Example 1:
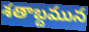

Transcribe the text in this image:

శతాబ్దమున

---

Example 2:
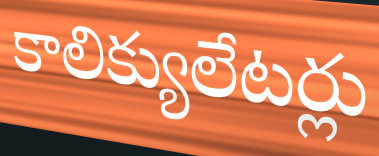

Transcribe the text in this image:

కాలిక్యులేటర్లు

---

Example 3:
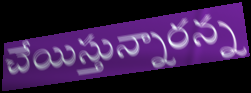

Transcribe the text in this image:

చేయిస్తున్నారన్న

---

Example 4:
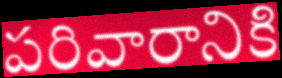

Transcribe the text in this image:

పరివారానికి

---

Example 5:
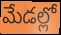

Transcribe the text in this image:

మేడల్లో